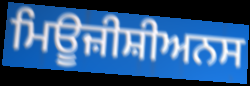
ਮਿਊਜ਼ੀਸ਼ੀਅਨਸ